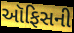
ઑફિસની